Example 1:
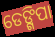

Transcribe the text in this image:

ଡେଙ୍ଗିପା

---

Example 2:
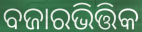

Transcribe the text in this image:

ବଜାରଭିତ୍ତିକ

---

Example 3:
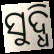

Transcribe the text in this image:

ସୁଦ୍ଧି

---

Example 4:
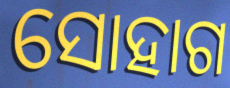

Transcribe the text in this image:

ସୋହାଗ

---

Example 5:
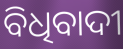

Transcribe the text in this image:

ବିଧିବାଦୀ